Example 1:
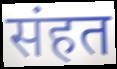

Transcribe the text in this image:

संहत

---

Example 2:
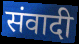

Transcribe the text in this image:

संवादी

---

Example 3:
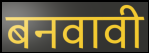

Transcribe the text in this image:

बनवावी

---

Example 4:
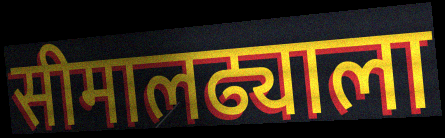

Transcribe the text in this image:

सीमालढ्याला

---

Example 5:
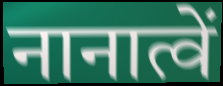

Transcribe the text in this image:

नानात्वें